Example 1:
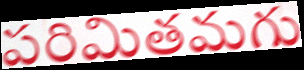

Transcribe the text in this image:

పరిమితమగు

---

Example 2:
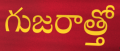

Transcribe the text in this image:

గుజరాత్తో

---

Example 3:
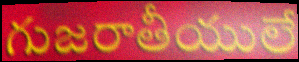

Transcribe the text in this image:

గుజరాతీయులే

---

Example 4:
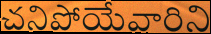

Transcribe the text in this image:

చనిపోయేవారిని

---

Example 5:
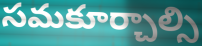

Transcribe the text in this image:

సమకూర్చాల్సి